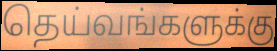
தெய்வங்களுக்கு